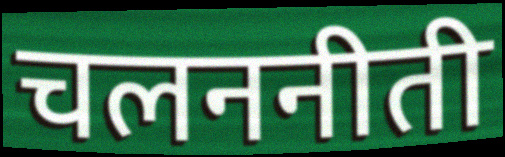
चलननीती